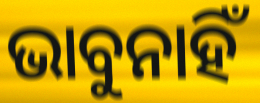
ଭାବୁନାହିଁ